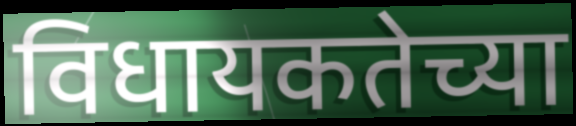
विधायकतेच्या